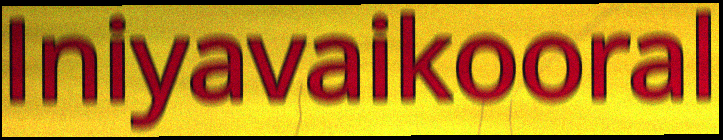
Iniyavaikooral